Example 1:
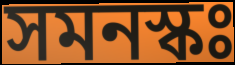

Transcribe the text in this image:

সমনস্কঃ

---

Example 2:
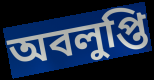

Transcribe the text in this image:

অবলুপ্তি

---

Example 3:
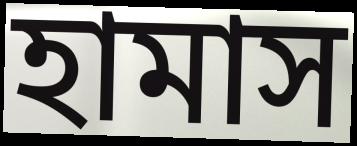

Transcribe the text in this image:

হামাস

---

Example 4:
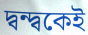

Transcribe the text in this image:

দ্বন্দ্বকেই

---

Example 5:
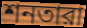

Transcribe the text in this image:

শনতারা